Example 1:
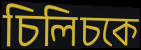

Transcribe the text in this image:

চিলিচকে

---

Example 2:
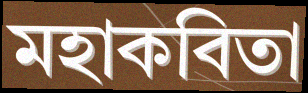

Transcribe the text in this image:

মহাকবিতা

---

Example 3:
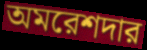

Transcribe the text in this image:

অমরেশদার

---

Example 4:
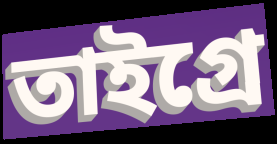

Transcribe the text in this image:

তাইগ্রে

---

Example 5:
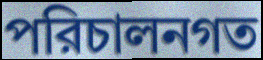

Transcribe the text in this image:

পরিচালনগত